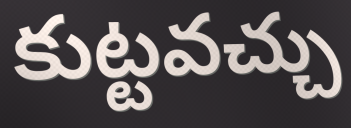
కుట్టవచ్చు